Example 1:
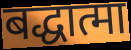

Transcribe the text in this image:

बद्धात्मा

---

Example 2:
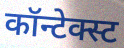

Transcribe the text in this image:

कॉन्टेक्स्ट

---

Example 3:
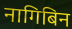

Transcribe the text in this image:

नागिबिन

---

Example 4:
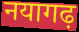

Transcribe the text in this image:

नयागढ़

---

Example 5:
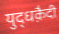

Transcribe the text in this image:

युद्धक़ैदी